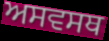
ਅਸਵਸਥ